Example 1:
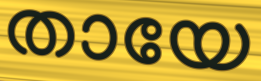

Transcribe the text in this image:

തായേ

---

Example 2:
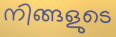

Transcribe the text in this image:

നിങ്ങളുടെ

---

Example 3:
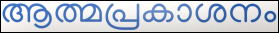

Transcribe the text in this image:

ആത്മപ്രകാശനം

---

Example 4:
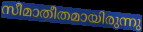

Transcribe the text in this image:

സീമാതീതമായിരുന്നു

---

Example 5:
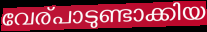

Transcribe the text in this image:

വേര്പാടുണ്ടാക്കിയ